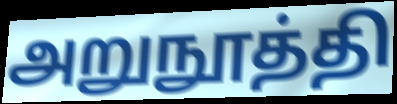
அறுநூத்தி